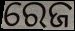
ରେଜ